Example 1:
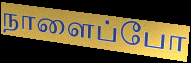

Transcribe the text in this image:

நாளைப்போ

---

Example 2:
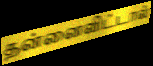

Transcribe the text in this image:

தன்னைவிட்டால்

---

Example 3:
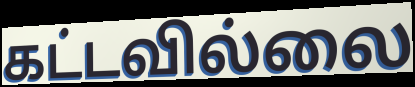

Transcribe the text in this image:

கட்டவில்லை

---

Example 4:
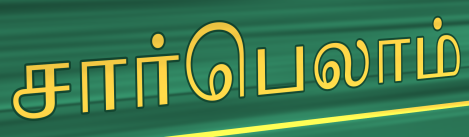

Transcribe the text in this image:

சார்பெலாம்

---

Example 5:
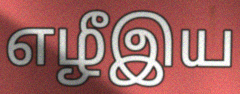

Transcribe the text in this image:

எழீஇய